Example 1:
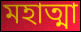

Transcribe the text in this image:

মহাত্মা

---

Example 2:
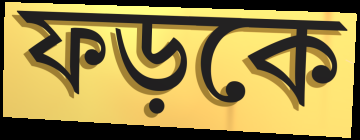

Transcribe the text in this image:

ফড়কে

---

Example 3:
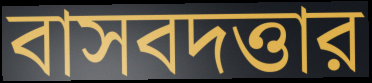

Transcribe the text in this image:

বাসবদত্তার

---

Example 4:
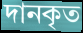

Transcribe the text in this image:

দানকৃত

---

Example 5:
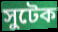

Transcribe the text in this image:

সুটেক